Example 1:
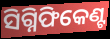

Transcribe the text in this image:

ସିଗ୍ନିଫିକେଣ୍ଟ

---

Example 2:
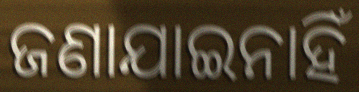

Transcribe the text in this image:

ଜଣାଯାଇନାହିଁ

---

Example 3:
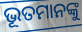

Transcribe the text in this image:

ଭୂତମାନଙ୍କୁ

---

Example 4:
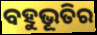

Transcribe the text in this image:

ବହୁଭୂତିର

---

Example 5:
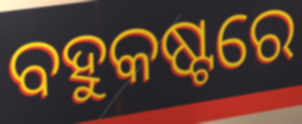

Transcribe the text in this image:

ବହୁକଷ୍ଟରେ